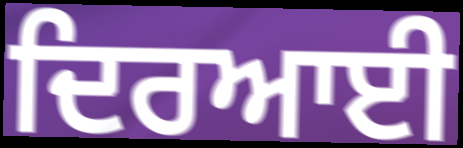
ਦਿਰਆਈ